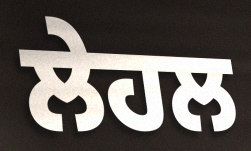
ਲੇਹਲ